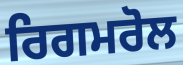
ਰਿਗਮਰੋਲ